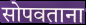
सोपवताना